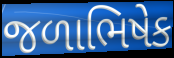
જળાભિષેક